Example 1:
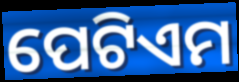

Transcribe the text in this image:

ପେଟିଏମ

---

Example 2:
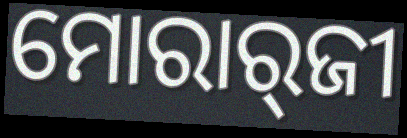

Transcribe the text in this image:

ମୋରାର୍‌ଜୀ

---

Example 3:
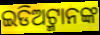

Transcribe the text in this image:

ଇଡିଅଟ୍ମାନଙ୍କ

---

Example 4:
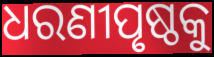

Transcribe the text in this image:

ଧରଣୀପୃଷ୍ଠକୁ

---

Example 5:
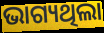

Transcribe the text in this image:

ଭାଗ୍ୟଥିଲା